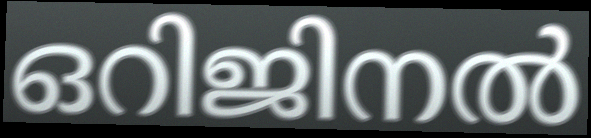
ഒറിജിനൽ